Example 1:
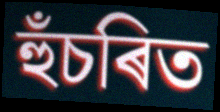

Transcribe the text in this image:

হুঁচৰিত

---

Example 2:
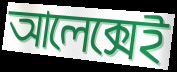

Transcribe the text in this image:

আলেক্সেই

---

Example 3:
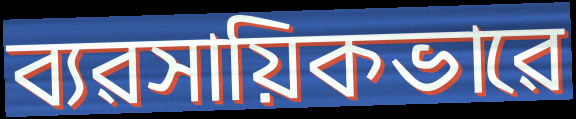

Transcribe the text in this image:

ব্যৱসায়িকভাৱে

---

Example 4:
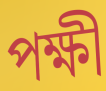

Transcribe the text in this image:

পক্ষী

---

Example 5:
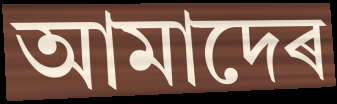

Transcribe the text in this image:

আমাদেৰ